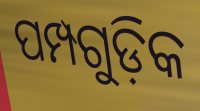
ପମ୍ପଗୁଡ଼ିକ